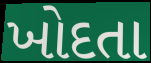
ખોદતા